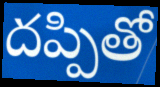
దప్పితో